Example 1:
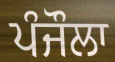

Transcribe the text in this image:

ਪੰਜੌਲਾ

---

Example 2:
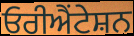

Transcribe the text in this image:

ਓਰੀਐਂਟੇਸ਼ਨ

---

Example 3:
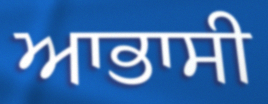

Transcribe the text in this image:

ਆਭਾਸੀ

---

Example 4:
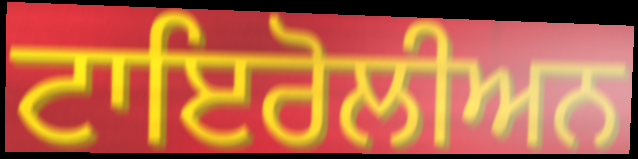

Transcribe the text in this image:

ਟਾਇਰੋਲੀਅਨ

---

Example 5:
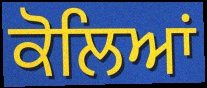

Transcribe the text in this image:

ਕੋਲਿਆਂ